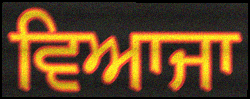
ਵਿਆਜਾ